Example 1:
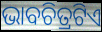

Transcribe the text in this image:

ଭାବଚିତ୍ରଟିଏ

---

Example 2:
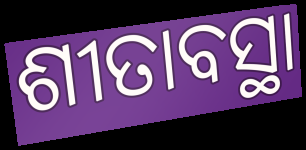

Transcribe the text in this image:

ଶୀତାବସ୍ଥା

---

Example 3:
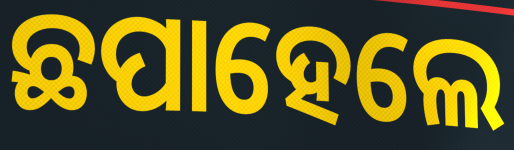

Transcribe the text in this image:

ଛପାହେଲେ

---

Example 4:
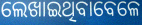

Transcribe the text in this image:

ଲେଖାଇଥିବାବେଳେ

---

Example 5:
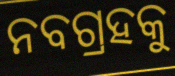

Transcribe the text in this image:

ନବଗ୍ରହକୁ